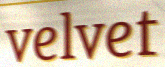
velvet